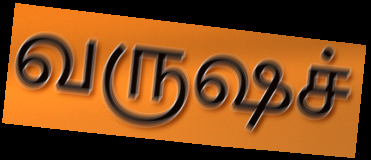
வருஷச்